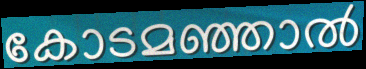
കോടമഞ്ഞാൽ